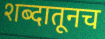
शब्दातूनच